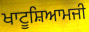
ਖਾਟੂਸ਼ਿਆਮਜੀ